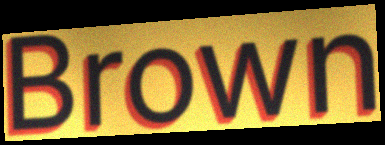
Brown